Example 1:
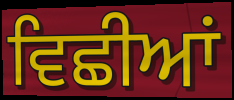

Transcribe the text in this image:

ਵਿਛੀਆਂ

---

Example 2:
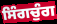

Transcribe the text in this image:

ਸਿੰਗਚੁੰਗ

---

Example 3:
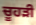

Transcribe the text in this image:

ਚੂਹੜੀ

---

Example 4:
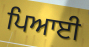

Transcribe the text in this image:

ਪਿਆਈ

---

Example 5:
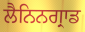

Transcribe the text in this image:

ਲੈਨਿਨਗ੍ਰਾਡ